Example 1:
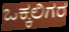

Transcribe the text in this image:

ಒಕ್ಕಲಿಗರ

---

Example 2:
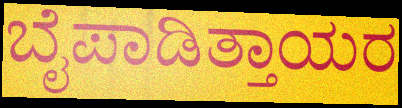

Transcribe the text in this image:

ಬೈಪಾಡಿತ್ತಾಯರ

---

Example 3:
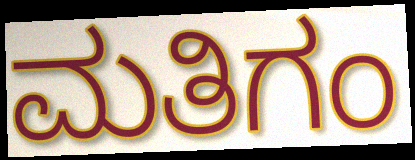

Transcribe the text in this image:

ಮತಿಗಂ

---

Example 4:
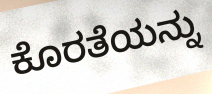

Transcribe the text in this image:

ಕೊರತೆಯನ್ನು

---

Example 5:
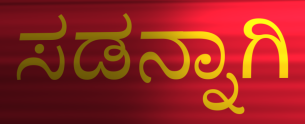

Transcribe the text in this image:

ಸಡನ್ನಾಗಿ